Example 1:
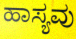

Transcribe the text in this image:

ಹಾಸ್ಯವು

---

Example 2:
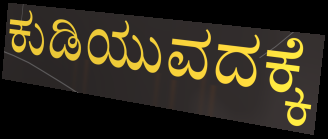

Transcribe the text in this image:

ಕುಡಿಯುವದಕ್ಕೆ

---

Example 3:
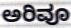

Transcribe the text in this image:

ಅರಿವೂ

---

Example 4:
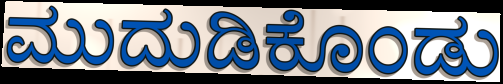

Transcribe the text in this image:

ಮುದುಡಿಕೊಂಡು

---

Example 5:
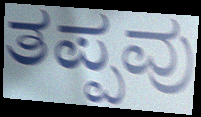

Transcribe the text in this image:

ತಪ್ಪವು